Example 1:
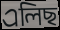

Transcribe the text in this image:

এলিছ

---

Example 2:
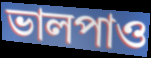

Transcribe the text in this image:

ভালপাও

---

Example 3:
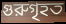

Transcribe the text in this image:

গুৰুগৃহত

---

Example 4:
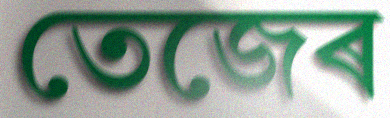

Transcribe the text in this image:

তেজেৰ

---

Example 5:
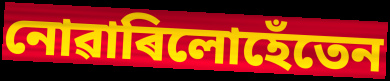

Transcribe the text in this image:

নোৱাৰিলোহেঁতেন